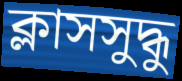
ক্লাসসুদ্ধু